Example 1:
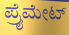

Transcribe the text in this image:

ಪ್ರೈಮೇಟ್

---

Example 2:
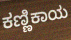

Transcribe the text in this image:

ಕಣ್ಣಿಕಾಯ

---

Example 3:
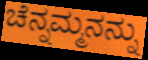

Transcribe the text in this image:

ಚೆನ್ನಮ್ಮನನ್ನು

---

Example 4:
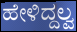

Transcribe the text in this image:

ಹೇಳಿದ್ದಲ್ವ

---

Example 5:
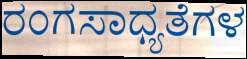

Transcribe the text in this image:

ರಂಗಸಾಧ್ಯತೆಗಳ